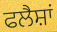
ਫਲੈਸ਼ਾਂ